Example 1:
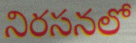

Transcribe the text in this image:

నిరసనలో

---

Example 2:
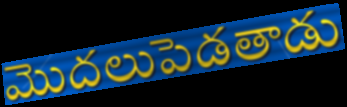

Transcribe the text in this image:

మొదలుపెడతాడు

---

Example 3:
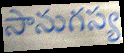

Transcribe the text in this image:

సానుగస్య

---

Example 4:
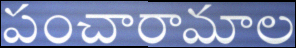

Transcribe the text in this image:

పంచారామాల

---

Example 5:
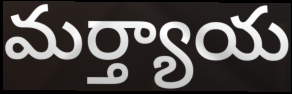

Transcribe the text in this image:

మర్త్యాయ